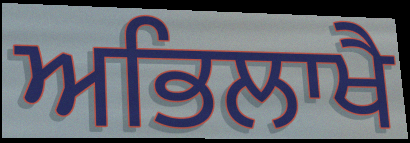
ਅਭਿਲਾਖੈ